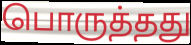
பொருத்தது